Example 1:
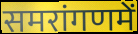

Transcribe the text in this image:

समरांगणमें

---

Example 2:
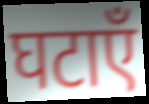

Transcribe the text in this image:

घटाएँ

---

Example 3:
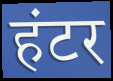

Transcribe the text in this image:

हंटर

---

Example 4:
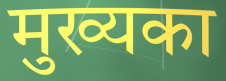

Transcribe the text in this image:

मुख्यका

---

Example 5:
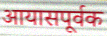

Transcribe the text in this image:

आयासपूर्वक